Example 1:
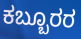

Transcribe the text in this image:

ಕಬ್ಬೂರರ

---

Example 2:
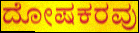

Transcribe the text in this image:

ದೋಷಕರವು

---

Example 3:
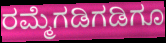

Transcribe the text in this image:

ರಮ್ಮೆಗಡಿಗಡಿಗೂ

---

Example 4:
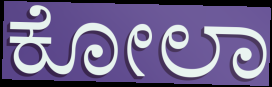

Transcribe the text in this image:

ಕೋಲಾ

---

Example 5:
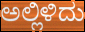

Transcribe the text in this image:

ಅಲ್ಲಿಳಿದು